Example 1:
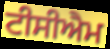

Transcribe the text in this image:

ਟੀਸੀਐਮ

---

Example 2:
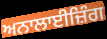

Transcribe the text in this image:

ਅਨਾਲਾਈਜ਼ਿੰਗ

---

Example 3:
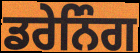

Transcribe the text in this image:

ਡਰੇਨਿੰਗ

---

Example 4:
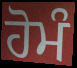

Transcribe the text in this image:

ਹੋਮੰ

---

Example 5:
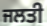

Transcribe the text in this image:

ਜਲਤੀ